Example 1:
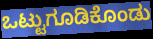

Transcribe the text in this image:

ಒಟ್ಟುಗೂಡಿಕೊಂಡು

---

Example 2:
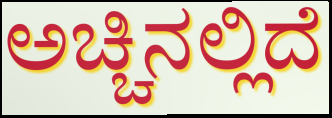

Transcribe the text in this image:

ಅಚ್ಚಿನಲ್ಲಿದೆ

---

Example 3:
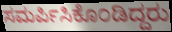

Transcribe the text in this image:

ಸಮರ್ಪಿಸಿಕೊಂಡಿದ್ದರು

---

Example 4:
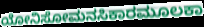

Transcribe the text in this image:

ಯೋನಿಸೋಮನಸಿಕಾರಮೂಲಕಾ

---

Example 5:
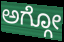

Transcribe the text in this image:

ಅಗ್ಗೋ